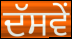
ਦੱਸਵੇਂ